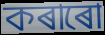
কৰাৰো